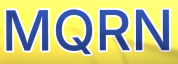
MQRN